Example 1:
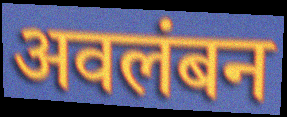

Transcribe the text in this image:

अवलंबन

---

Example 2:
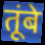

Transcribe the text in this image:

तूंबे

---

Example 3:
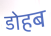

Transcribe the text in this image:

डोहब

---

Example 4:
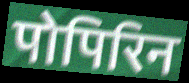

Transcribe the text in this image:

पोपिरिन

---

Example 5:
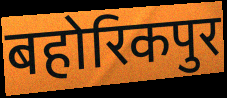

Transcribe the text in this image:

बहोरिकपुर